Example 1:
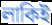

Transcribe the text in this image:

লাকিই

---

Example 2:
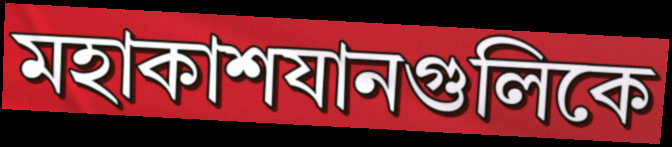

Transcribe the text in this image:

মহাকাশযানগুলিকে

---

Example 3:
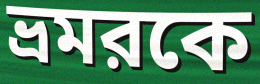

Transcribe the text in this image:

ভ্রমরকে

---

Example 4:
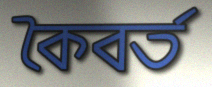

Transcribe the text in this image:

কৈবর্ত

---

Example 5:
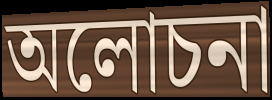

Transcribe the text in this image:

অলোচনা